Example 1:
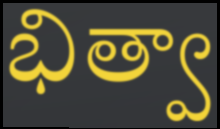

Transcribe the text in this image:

భిత్వా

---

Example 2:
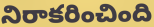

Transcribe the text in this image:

నిరాకరించింది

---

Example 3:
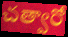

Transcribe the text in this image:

చత్వారో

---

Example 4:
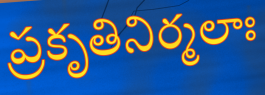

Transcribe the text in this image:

ప్రకృతినిర్మలాః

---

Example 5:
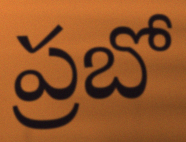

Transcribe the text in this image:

ప్రబో